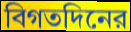
বিগতদিনের